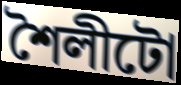
শৈলীটো